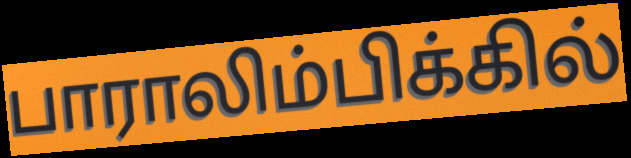
பாராலிம்பிக்கில்